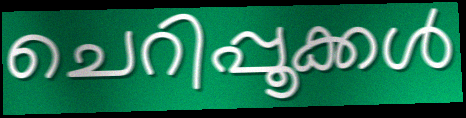
ചെറിപ്പൂക്കൾ